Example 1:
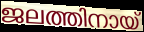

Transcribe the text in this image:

ജലത്തിനായ്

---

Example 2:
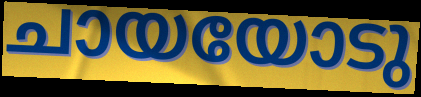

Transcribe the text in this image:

ചായയോടു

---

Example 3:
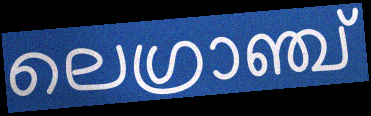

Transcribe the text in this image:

ലെഗ്രാഞ്ച്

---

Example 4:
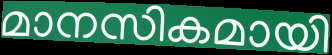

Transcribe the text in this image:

മാനസികമായി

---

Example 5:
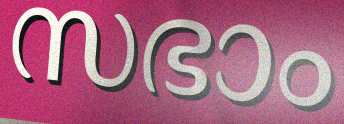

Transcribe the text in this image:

സഭാം